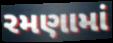
રમણામાં